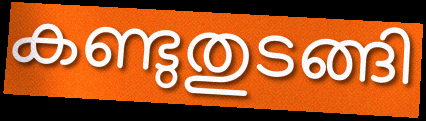
കണ്ടുതുടങ്ങി